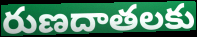
రుణదాతలకు